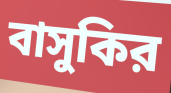
বাসুকির